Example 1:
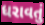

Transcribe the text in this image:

ધરાવતું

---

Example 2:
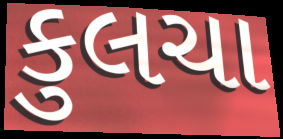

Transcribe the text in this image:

કુલચા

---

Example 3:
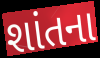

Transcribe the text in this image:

શાંતના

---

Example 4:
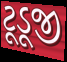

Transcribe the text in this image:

ટૂડૂજી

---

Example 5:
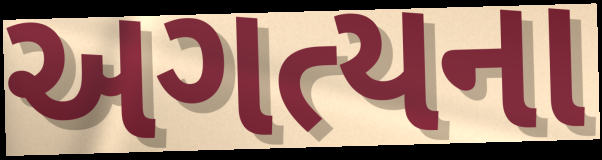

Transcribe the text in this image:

અગત્યના